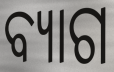
ବ୍ୟାଗ